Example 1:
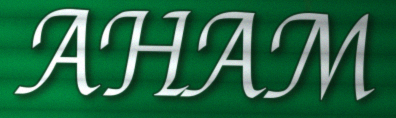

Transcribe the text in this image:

AHAM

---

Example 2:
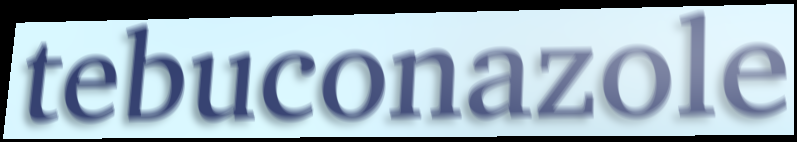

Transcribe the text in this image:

tebuconazole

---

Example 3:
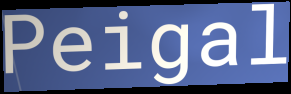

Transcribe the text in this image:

Peigal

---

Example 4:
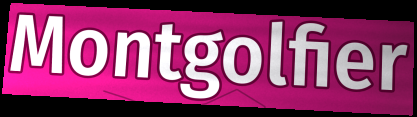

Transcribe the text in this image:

Montgolfier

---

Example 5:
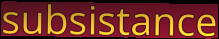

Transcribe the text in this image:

subsistance